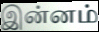
இன்னம்